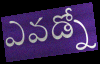
ఎవడ్నో